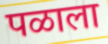
पळाला